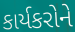
કાર્યકરોને